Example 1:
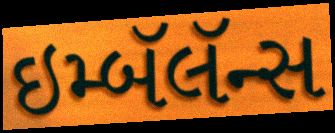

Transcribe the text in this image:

ઇમ્બૅલૅન્સ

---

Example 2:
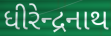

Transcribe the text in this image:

ધીરેન્દ્રનાથ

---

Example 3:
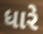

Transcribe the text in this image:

ધારે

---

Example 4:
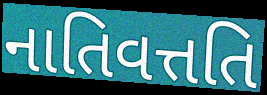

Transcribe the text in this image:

નાતિવત્તતિ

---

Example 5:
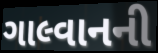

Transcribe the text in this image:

ગાલ્વાનની